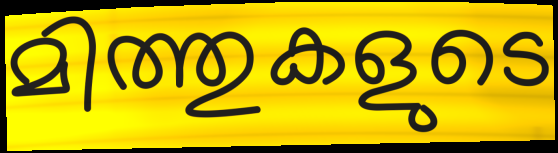
മിത്തുകളുടെ